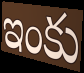
ఇంకు